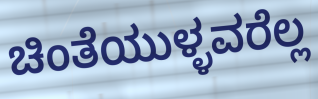
ಚಿಂತೆಯುಳ್ಳವರೆಲ್ಲ